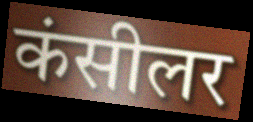
कंसीलर